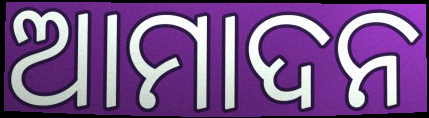
ଆମାଦନ